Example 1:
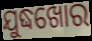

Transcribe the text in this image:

ଯୁଦ୍ଧଖୋର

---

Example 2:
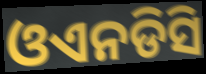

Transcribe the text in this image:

ଓଏନଡିସି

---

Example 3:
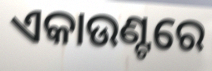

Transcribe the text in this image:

ଏକାଉଣ୍ଟରେ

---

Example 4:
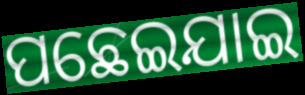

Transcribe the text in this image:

ପଛେଇଯାଇ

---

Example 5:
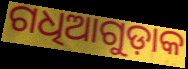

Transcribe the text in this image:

ଗଧିଆଗୁଡ଼ାକ